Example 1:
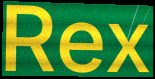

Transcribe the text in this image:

Rex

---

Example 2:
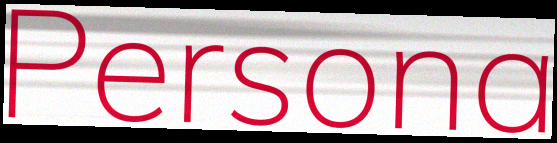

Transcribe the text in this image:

Persona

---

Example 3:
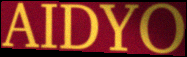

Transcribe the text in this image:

AIDYO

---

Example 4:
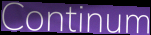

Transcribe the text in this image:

Continum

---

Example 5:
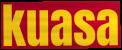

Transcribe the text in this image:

kuasa